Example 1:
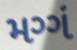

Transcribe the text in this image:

મગ્ગં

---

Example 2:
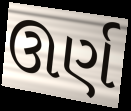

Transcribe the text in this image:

ઊર્ણ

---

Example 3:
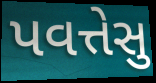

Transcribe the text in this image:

પવત્તેસુ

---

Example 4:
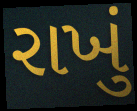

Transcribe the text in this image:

રાખું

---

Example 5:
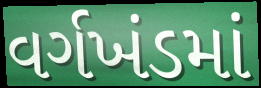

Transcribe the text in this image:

વર્ગખંડમાં